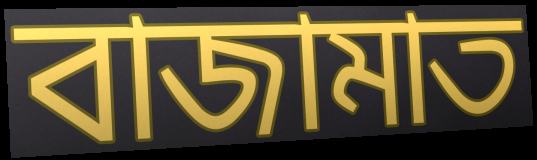
বাজামাত